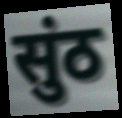
सुंठ